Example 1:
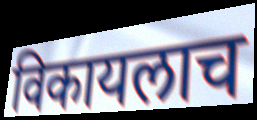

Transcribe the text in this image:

विकायलाच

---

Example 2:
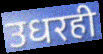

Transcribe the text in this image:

उधरही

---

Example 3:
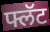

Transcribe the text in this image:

फ्लॅट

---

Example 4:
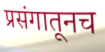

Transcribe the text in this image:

प्रसंगातूनच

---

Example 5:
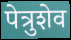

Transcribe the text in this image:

पेत्रुशेव